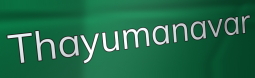
Thayumanavar